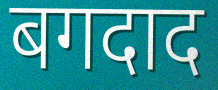
बगदाद